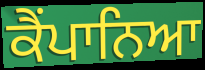
ਕੈਂਪਾਨਿਆ